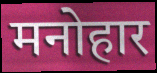
मनोहार